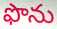
ఫొను